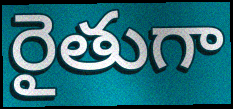
రైతుగా